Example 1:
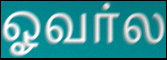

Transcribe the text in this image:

ஓவர்ல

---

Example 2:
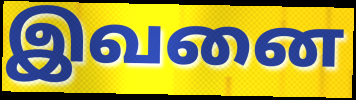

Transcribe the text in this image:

இவனை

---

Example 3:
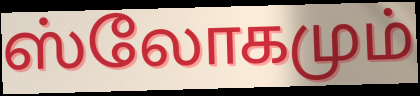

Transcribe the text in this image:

ஸ்லோகமும்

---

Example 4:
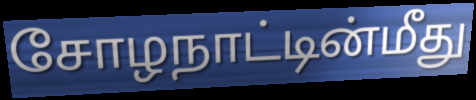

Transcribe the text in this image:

சோழநாட்டின்மீது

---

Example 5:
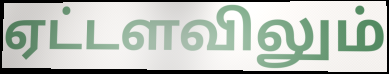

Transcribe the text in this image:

ஏட்டளவிலும்